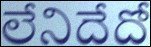
లేనిదేదో